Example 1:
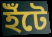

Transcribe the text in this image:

ইঁটে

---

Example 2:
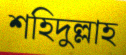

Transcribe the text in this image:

শহিদুল্লাহ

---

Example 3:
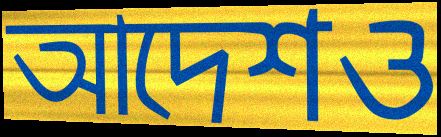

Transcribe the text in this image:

আদেশও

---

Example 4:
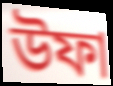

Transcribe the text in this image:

উফা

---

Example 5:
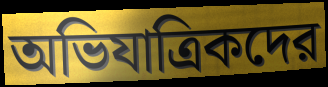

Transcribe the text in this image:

অভিযাত্রিকদের